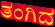
ತಂಗಿದ